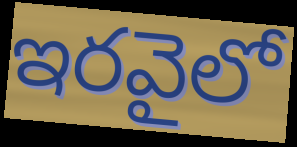
ఇరవైలో